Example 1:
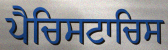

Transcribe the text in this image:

ਪੈਚਿਸਟਾਚਿਸ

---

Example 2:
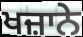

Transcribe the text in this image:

ਖਜ਼ਾਨੇ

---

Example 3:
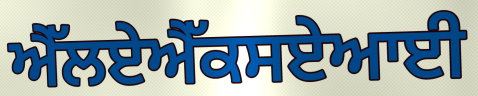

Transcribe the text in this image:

ਐੱਲਏਐੱਕਸਏਆਈ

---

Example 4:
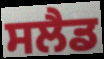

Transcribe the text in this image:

ਸਲੈਡ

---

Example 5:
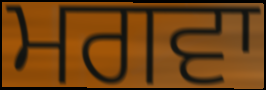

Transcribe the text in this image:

ਮਗਵਾ